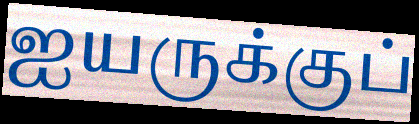
ஐயருக்குப்